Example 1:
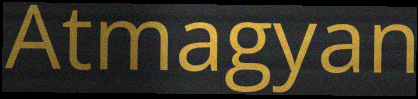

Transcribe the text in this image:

Atmagyan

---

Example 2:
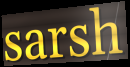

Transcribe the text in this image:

sarsh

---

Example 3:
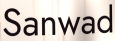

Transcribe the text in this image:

Sanwad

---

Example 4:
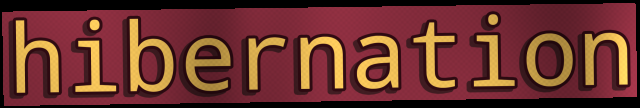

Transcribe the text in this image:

hibernation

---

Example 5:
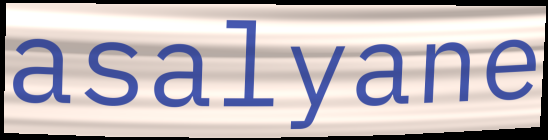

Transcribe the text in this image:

asalyane